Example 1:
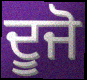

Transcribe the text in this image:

ਦੂਜੋ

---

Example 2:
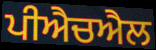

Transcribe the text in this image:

ਪੀਐਚਐਲ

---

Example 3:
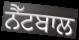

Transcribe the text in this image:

ਨੈੱਟਬਾਲ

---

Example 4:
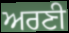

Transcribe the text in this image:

ਅਰਣੀ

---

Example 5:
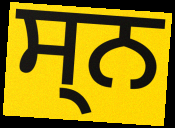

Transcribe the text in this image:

ਸ੍ਨ